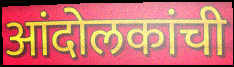
आंदोलकांची